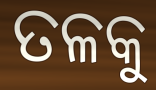
ତଳକୁ